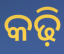
କଢ଼ି